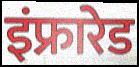
इंफ्रारेड